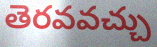
తెరవవచ్చు